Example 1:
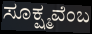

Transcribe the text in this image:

ಸೂಕ್ಷ್ಮವೆಂಬ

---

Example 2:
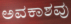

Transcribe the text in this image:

ಅವಕಾಶವು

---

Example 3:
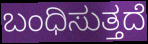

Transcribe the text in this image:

ಬಂಧಿಸುತ್ತದೆ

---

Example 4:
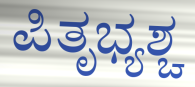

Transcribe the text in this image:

ಪಿತೃಭ್ಯಶ್ಚ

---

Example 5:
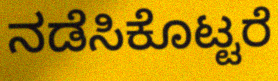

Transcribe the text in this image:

ನಡೆಸಿಕೊಟ್ಟರೆ